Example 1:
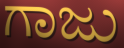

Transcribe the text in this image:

ಗಾಜು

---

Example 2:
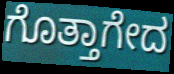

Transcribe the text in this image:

ಗೊತ್ತಾಗೇದ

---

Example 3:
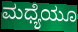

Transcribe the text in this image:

ಮಧ್ಯೆಯೂ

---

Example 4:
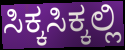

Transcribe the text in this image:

ಸಿಕ್ಕಸಿಕ್ಕಲ್ಲಿ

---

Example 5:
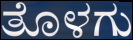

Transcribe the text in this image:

ತೊಳಗು